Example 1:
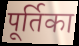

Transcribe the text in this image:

पूर्तिका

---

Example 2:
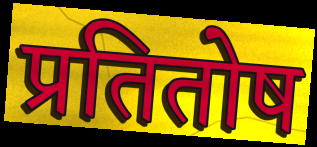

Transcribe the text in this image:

प्रतितोष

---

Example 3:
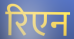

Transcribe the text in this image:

रिएन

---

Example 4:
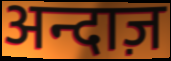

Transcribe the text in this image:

अन्दाज़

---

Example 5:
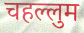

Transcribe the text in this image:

चहल्लुम